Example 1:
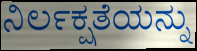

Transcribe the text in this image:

ನಿರ್ಲಕ್ಷತೆಯನ್ನು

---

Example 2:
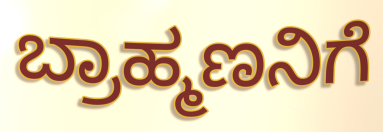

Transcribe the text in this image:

ಬ್ರಾಹ್ಮಣನಿಗೆ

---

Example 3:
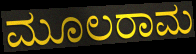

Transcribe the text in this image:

ಮೂಲರಾಮ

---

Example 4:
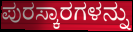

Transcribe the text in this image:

ಪುರಸ್ಕಾರಗಳನ್ನು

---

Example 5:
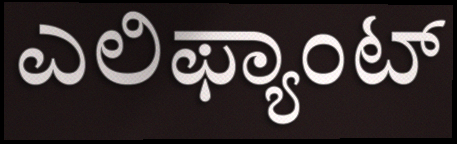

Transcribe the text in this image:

ಎಲಿಫ್ಯಾಂಟ್